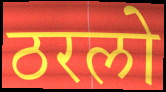
ठरलो